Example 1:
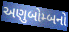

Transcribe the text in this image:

અણુબોમ્બનો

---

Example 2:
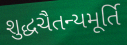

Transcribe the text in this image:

શુદ્ધચૈતન્યમૂર્તિ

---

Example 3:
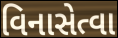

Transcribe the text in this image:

વિનાસેત્વા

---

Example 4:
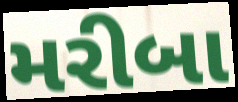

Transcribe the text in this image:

મરીબા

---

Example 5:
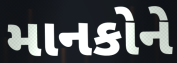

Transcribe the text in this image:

માનકોને